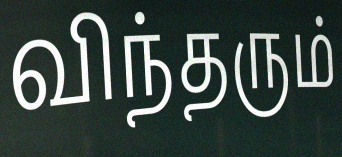
விந்தரும்